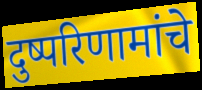
दुष्परिणामांचे